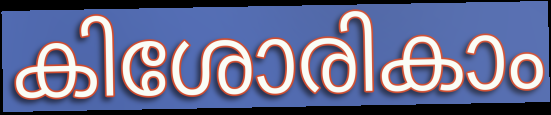
കിശോരികാം